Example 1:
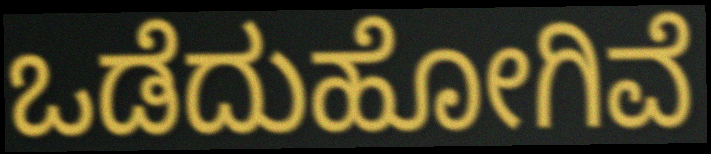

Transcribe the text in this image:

ಒಡೆದುಹೋಗಿವೆ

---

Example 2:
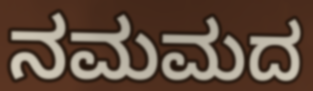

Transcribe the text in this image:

ನಮಮದ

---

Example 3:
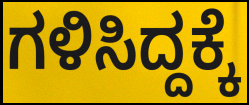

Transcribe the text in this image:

ಗಳಿಸಿದ್ದಕ್ಕೆ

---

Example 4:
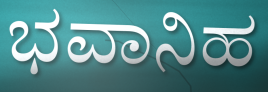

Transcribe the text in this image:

ಭವಾನಿಹ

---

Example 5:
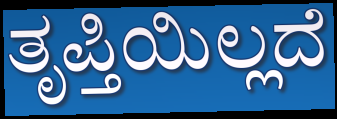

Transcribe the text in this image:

ತೃಪ್ತಿಯಿಲ್ಲದೆ